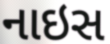
નાઇસ